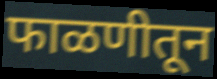
फाळणीतून